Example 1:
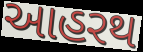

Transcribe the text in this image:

આહરથ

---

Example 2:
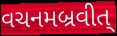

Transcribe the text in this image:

વચનમબ્રવીત્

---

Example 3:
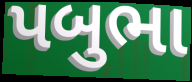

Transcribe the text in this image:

પબુભા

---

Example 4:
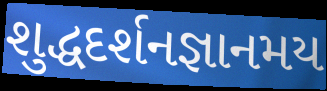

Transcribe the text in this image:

શુદ્ધદર્શનજ્ઞાનમય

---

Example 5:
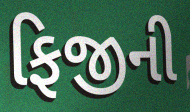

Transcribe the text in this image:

ફિજીની